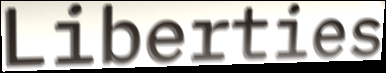
Liberties